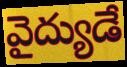
వైద్యుడే